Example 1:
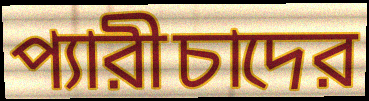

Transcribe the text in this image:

প্যারীচাদের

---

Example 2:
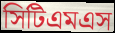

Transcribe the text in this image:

সিটিএমএস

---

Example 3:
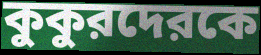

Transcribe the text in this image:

কুকুরদেরকে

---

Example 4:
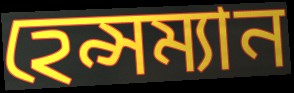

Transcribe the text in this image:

হেন্সম্যান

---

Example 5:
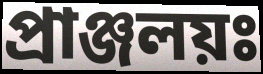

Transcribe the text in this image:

প্রাঞ্জলয়ঃ